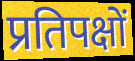
प्रतिपक्षों